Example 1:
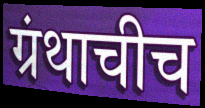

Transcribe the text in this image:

ग्रंथाचीच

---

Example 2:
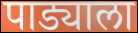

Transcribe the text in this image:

पाड्याला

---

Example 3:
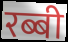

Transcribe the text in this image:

रब्बी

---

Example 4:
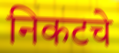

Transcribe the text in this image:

निकटचे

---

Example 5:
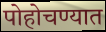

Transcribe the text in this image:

पोहोचण्यात